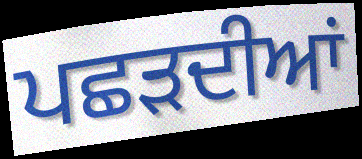
ਪਛੜਦੀਆਂ